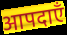
आपदाएँ